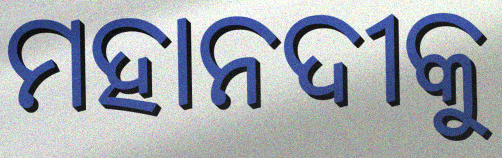
ମହାନଦୀକୁ